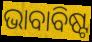
ଭାବାବିଷ୍ଟ